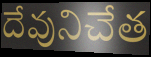
దేవునిచేత